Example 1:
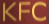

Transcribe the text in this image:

KFC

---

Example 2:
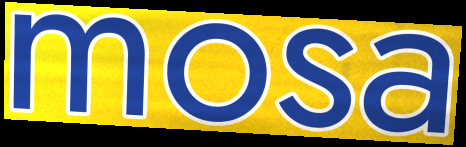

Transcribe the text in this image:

mosa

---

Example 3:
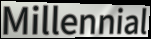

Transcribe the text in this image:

Millennial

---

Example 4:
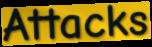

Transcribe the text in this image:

Attacks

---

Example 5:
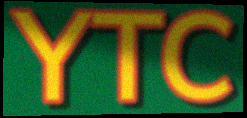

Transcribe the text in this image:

YTC